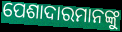
ପେଶାଦାରମାନଙ୍କୁ